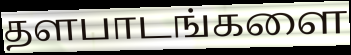
தளபாடங்களை